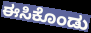
ಈಸಿಕೊಂಡು